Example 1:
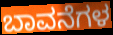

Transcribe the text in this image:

ಬಾವನೆಗಳ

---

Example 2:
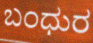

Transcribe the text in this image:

ಬಂಧುರ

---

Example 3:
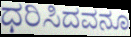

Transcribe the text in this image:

ಧರಿಸಿದವನೂ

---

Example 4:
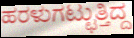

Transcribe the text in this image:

ಹರಳುಗಟ್ಟುತ್ತಿದ್ದ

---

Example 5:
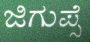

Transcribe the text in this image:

ಜಿಗುಪ್ಸೆ